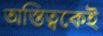
অস্তিত্বকেই